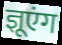
ज्ञूएंग